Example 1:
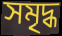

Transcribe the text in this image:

সমৃদ্ধ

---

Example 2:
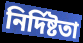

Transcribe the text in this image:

নিৰ্দিষ্টতা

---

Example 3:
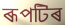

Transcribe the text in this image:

ৰূপটিৰ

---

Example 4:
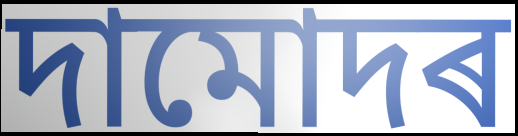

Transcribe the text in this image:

দামোদৰ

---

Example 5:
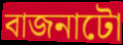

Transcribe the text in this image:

বাজনাটো